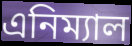
এনিম্যাল